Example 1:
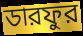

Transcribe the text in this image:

ডারফুর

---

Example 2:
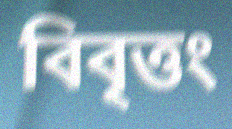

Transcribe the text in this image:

বিবৃত্তং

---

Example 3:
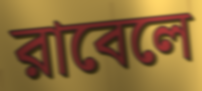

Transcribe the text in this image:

রাবেলে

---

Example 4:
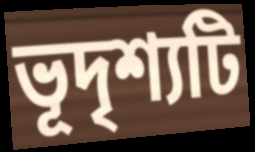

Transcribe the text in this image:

ভূদৃশ্যটি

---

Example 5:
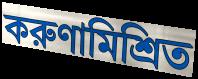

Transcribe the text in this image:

করুণামিশ্রিত